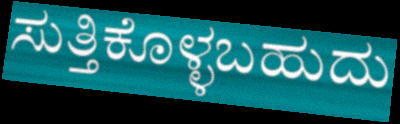
ಸುತ್ತಿಕೊಳ್ಳಬಹುದು